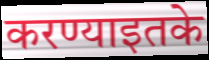
करण्याइतके